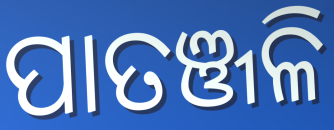
ପାତଞ୍ଜଳି